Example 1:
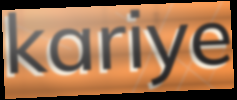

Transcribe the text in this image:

kariye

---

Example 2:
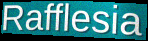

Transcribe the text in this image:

Rafflesia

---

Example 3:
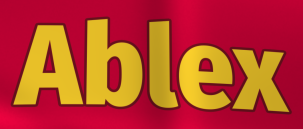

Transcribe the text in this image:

Ablex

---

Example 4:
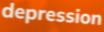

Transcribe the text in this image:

depression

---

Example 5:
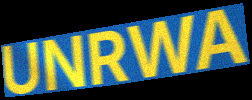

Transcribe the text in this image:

UNRWA